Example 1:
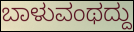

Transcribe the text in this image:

ಬಾಳುವಂಥದ್ದು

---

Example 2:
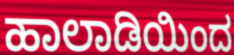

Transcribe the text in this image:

ಹಾಲಾಡಿಯಿಂದ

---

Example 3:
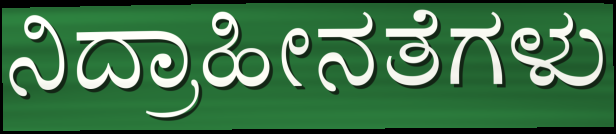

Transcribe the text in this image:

ನಿದ್ರಾಹೀನತೆಗಳು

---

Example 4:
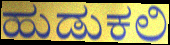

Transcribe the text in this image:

ಹುಡುಕಲಿ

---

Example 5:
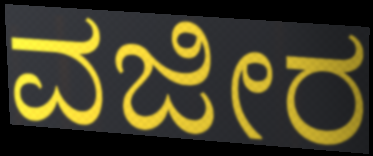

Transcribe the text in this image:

ವಜೀರ